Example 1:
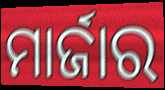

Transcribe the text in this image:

ମାର୍ଜାର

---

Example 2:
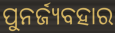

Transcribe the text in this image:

ପୁନର୍ଜ୍ୟବହାର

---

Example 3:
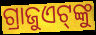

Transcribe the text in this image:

ଗ୍ରାଜୁଏଟ୍‌ଙ୍କୁ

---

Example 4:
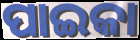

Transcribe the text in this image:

ପାଇକା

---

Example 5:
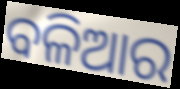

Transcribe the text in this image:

ବଳିଆର